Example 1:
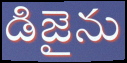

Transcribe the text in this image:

డిజైను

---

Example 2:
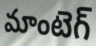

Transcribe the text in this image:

మాంటెగ్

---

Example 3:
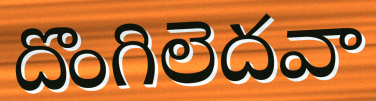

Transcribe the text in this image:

దొంగిలెదవా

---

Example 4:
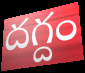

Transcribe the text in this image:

దగ్దం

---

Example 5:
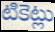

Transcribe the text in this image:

టికెట్లు